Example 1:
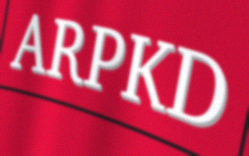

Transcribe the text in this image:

ARPKD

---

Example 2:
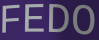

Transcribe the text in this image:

FEDO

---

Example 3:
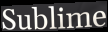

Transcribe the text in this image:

Sublime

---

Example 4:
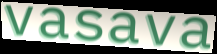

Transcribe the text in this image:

vasava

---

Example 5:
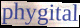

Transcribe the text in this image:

phygital